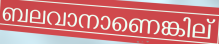
ബലവാനാണെങ്കില്